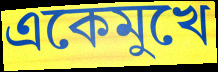
একেমুখে